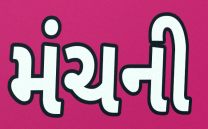
મંચની